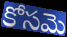
కోసమె